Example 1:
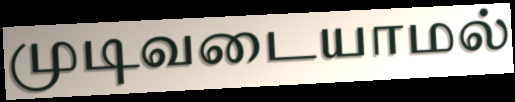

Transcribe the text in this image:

முடிவடையாமல்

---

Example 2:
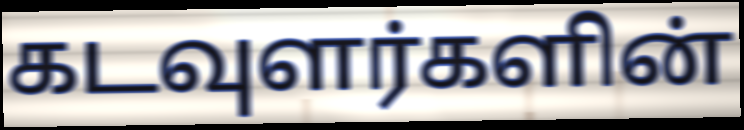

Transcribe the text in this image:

கடவுளர்களின்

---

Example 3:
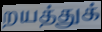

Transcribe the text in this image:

றயத்துக்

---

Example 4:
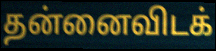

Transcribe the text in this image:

தன்னைவிடக்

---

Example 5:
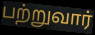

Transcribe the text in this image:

பற்றுவார்